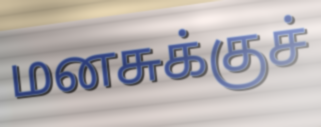
மனசுக்குச்